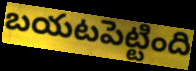
బయటపెట్టింది